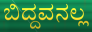
ಬಿದ್ದವನಲ್ಲ